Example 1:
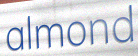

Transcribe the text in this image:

almond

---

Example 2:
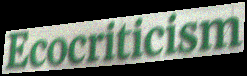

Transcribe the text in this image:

Ecocriticism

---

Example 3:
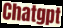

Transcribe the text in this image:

Chatgpt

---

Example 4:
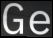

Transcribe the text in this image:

Ge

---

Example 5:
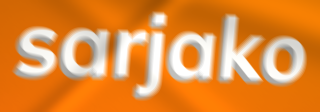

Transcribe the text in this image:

sarjako